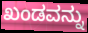
ಖಂಡವನ್ನು